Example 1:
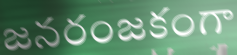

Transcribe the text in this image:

జనరంజకంగా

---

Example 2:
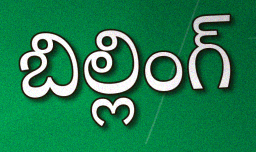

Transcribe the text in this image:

బిల్లింగ్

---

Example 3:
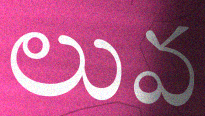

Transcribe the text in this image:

లువ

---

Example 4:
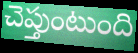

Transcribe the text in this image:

చెప్తుంటుంది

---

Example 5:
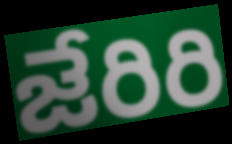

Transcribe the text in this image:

జేరిరి